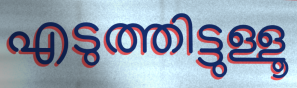
എടുത്തിട്ടുള്ളൂ